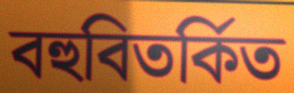
বহুবিতর্কিত